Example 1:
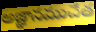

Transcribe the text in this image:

అజ్ఞానముచేత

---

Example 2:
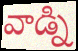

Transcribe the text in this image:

వాడ్ని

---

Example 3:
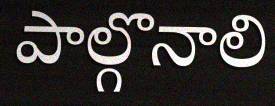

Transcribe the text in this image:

పాల్గొనాలి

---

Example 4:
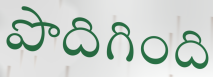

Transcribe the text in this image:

పొదిగింది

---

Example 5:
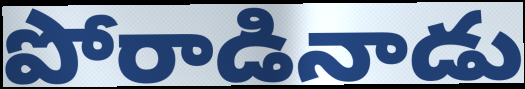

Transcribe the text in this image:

పోరాడినాడు